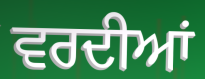
ਵਰਦੀਆਂ